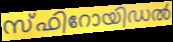
സ്ഫിറോയിഡൽ